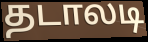
தடாலடி